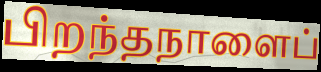
பிறந்தநாளைப்